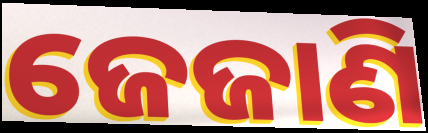
ଜେଜାଣି